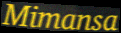
Mimansa